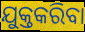
ଯୁକ୍ତକରିବା